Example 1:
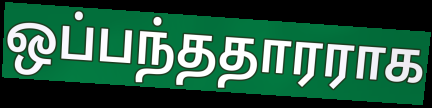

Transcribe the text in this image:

ஒப்பந்ததாரராக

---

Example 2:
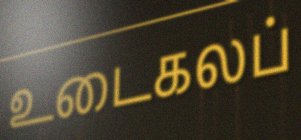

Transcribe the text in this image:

உடைகலப்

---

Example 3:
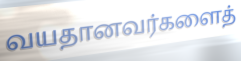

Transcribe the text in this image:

வயதானவர்களைத்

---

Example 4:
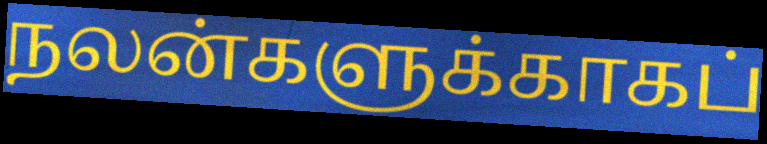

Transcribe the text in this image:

நலன்களுக்காகப்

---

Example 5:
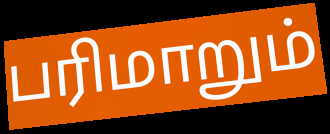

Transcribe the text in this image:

பரிமாறும்